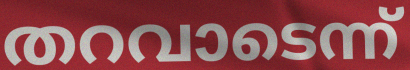
തറവാടെന്ന്